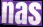
nas